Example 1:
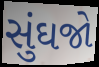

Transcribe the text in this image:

સુંઘજો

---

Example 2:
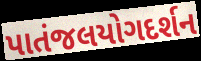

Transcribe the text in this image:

પાતંજલયોગદર્શન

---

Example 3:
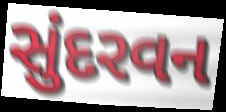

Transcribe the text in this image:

સુંદરવન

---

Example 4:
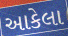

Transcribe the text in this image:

આકેલા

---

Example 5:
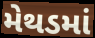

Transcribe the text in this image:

મેથડમાં